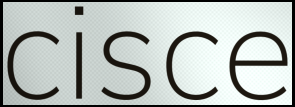
cisce